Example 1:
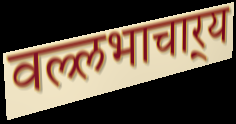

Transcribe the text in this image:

वल्लभाचार्य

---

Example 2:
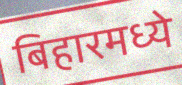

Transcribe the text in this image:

बिहारमध्ये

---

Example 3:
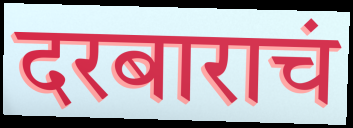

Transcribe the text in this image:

दरबाराचं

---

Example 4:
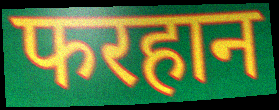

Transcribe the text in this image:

फरहान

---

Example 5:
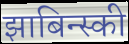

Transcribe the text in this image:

झाबिन्स्की